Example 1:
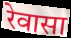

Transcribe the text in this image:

रेवासा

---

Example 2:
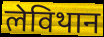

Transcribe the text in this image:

लेविथान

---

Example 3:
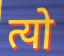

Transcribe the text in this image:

त्यो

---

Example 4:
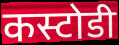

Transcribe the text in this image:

कस्टोडी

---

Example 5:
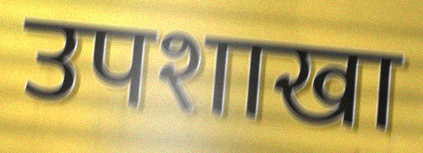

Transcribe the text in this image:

उपशाखा